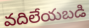
వదిలేయబడి